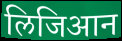
लिजिआन